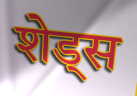
शेड्स